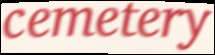
cemetery